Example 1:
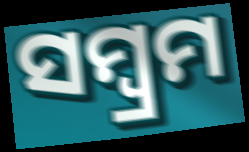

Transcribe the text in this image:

ସମ୍ବ୍ରମ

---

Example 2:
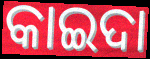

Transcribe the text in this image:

କାଇଦା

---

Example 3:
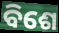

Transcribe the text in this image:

ବିଶେ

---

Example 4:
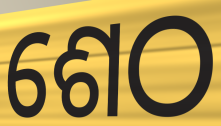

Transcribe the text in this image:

ଶେଠ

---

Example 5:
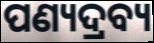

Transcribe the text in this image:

ପଣ୍ୟଦ୍ରବ୍ୟ